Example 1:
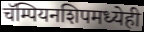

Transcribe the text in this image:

चॅम्पियनशिपमध्येही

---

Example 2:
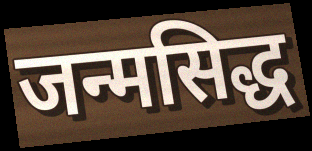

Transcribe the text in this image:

जन्मसिद्ध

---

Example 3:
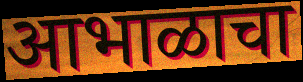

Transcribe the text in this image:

आभाळाचा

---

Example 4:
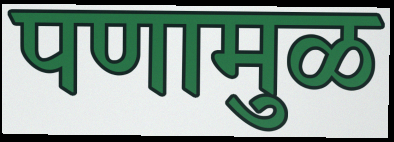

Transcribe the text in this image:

पणामुळ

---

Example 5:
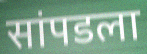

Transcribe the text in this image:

सांपडला